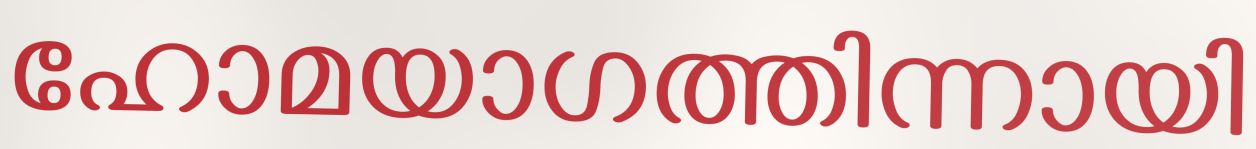
ഹോമയാഗത്തിന്നായി